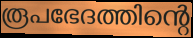
രൂപഭേദത്തിന്റെ